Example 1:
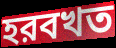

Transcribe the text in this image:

হরবখত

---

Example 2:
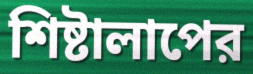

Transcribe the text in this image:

শিষ্টালাপের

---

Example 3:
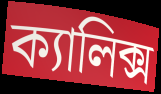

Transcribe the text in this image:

ক্যালিক্স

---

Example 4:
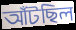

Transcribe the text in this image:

আঁটছিল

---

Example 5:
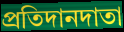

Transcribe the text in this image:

প্রতিদানদাতা